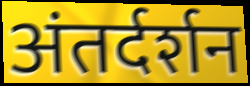
अंतर्दर्शन